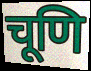
चूणि